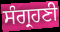
ਸੰਗ੍ਰਹਣੀ